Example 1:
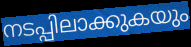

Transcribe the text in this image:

നടപ്പിലാക്കുകയും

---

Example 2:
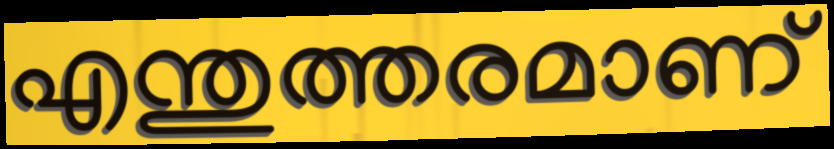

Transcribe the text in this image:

എന്തുത്തരമാണ്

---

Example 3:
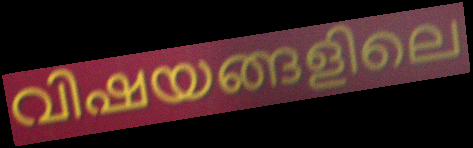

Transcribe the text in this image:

വിഷയങ്ങളിലെ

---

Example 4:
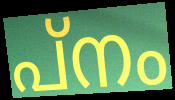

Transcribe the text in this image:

പ്നം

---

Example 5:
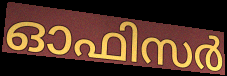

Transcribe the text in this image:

ഓഫിസർ